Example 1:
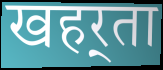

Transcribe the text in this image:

खहर्ता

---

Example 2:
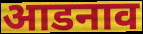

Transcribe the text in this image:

आडनाव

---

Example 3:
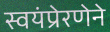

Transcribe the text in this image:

स्वयंप्रेरणेने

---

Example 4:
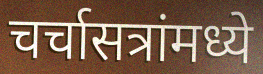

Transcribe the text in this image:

चर्चासत्रांमध्ये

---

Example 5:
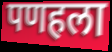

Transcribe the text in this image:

पणहला